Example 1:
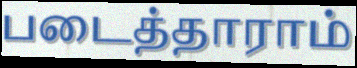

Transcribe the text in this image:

படைத்தாராம்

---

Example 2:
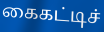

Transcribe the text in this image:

கைகட்டிச்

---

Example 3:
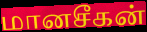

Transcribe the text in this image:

மானசீகன்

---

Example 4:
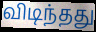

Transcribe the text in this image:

விடிந்தது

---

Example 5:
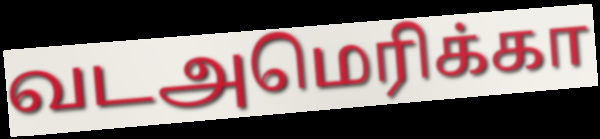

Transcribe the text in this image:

வடஅமெரிக்கா